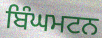
ਬਿੰਘਮਟਨ